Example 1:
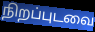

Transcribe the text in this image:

நிறப்புடவை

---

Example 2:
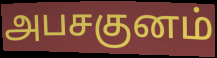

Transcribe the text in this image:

அபசகுனம்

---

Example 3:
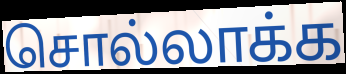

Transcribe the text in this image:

சொல்லாக்க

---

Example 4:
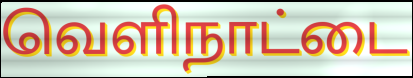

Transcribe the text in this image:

வெளிநாட்டை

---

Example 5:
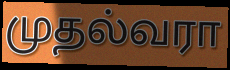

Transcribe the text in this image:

முதல்வரா